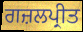
ਗਜ਼ਲਪ੍ਰੀਤ